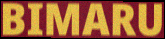
BIMARU